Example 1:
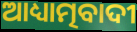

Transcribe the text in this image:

ଆଧ୍ୟାତ୍ମବାଦୀ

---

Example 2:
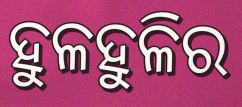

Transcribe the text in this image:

ହୁଳହୁଳିର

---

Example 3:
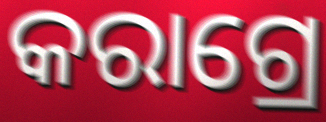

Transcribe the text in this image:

କରାଗ୍ରେ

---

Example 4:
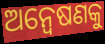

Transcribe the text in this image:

ଅନ୍ବେଷଣକୁ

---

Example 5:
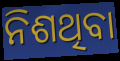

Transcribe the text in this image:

ନିଶଥିବା